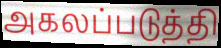
அகலப்படுத்தி